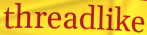
threadlike